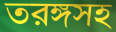
তরঙ্গসহ